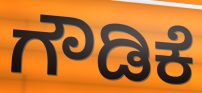
ಗೌಡಿಕೆ